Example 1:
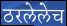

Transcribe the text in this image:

ठरलेलेच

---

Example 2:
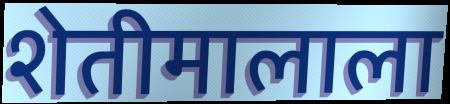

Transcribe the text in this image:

शेतीमालाला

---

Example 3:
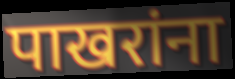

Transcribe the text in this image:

पाखरांना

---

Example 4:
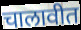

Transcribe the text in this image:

चालावीत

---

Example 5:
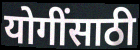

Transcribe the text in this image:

योगींसाठी